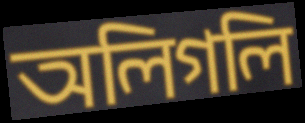
অলিগলি